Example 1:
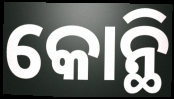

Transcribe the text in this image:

କୋନ୍ଥି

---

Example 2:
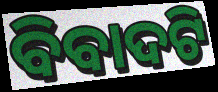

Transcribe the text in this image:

ବିବାଦଟି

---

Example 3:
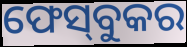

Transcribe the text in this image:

ଫେସ୍‌ବୁକର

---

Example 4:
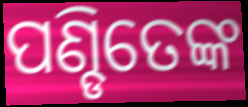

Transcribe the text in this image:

ପଣ୍ଡିତେଙ୍କ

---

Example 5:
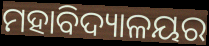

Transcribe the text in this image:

ମହାବିଦ୍ୟାଳୟର